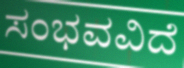
ಸಂಭವವಿದೆ